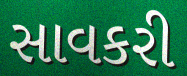
સાવકરી